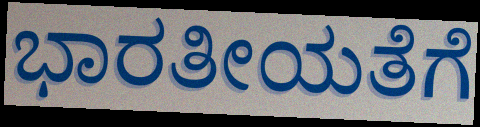
ಭಾರತೀಯತೆಗೆ